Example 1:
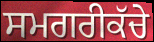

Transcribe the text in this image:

ਸਮਗਰੀਕੱਚੇ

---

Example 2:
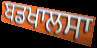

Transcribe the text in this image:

ਬਡਖਾਲਸਾ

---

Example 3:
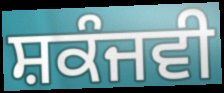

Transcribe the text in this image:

ਸ਼ਕੰਜਵੀ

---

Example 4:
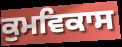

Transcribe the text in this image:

ਕੁਮਵਿਕਾਸ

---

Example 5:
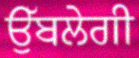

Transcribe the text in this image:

ਉੱਬਲੇਗੀ